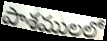
పాశములలో